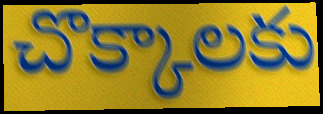
చొక్కాలకు